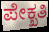
ಪೇಕ್ಖತಿ